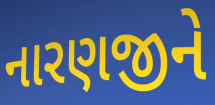
નારણજીને